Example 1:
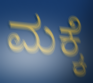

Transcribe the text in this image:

ಮಕ್ಕೆ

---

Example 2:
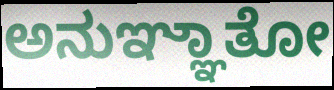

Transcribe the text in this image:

ಅನುಞ್ಞಾತೋ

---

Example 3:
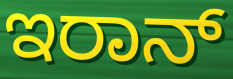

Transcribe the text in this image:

ಇರಾನ್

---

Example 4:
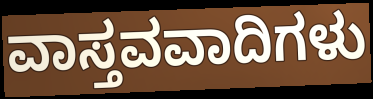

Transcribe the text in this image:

ವಾಸ್ತವವಾದಿಗಳು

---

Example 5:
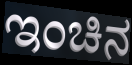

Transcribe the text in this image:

ಇಂಚಿನ